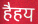
हैहय